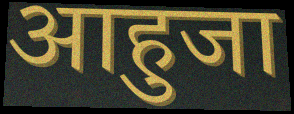
आहुजा